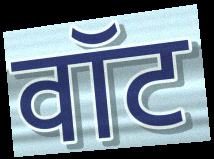
वॉट